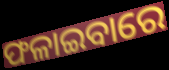
ଫଳାଇବାରେ